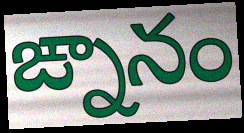
ఙ్నానం